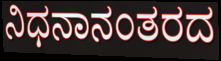
ನಿಧನಾನಂತರದ